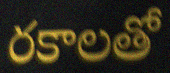
రకాలతో